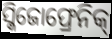
ସ୍କିଜୋଫ୍ରେନିକ୍